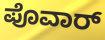
ಪೊವಾರ್